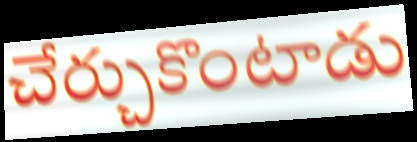
చేర్చుకొంటాడు